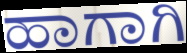
ಹಾಗಾಗಿ